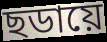
ছডায়ে